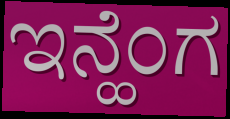
ಇನ್ಹೆಂಗ